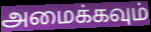
அமைக்கவும்